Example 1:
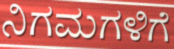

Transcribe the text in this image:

ನಿಗಮಗಳಿಗೆ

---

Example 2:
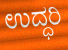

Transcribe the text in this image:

ಉದ್ಧರಿ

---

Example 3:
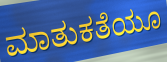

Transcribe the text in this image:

ಮಾತುಕತೆಯೂ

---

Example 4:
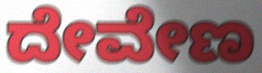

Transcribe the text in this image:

ದೇವೇಣ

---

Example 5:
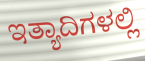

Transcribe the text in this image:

ಇತ್ಯಾದಿಗಳಲ್ಲಿ